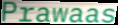
Prawaas